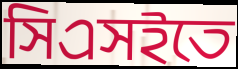
সিএসইতে